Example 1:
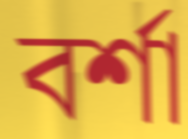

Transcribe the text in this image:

বর্শা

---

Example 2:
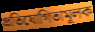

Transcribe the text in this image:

প্রতিযোগিতামূলক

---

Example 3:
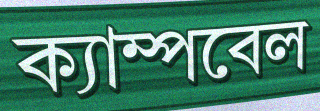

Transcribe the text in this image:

ক্যাম্পবেল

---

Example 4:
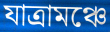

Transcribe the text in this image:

যাত্রামঞ্চে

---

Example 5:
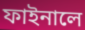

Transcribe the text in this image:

ফাইনালে